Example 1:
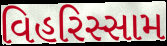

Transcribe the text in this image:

વિહરિસ્સામ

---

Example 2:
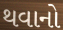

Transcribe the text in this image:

થવાનો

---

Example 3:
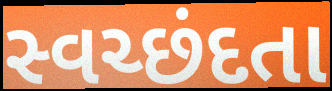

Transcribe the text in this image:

સ્વચ્છંદતા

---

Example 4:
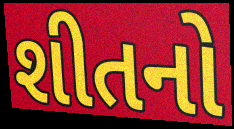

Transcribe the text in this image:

શીતનો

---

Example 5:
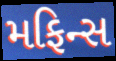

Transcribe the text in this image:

મફિન્સ